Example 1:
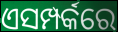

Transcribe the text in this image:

ଏସମ୍ପର୍କରେ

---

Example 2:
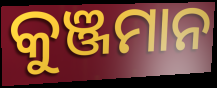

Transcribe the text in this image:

କୁଞ୍ଜମାନ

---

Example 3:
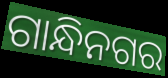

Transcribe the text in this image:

ଗାନ୍ଧିନଗର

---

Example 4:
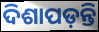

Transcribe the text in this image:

ଦିଶାପଡ଼ନ୍ତି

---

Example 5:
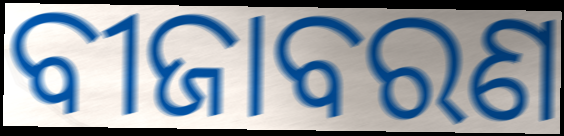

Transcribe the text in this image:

ବୀଜାବରଣ